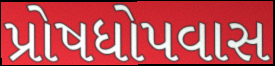
પ્રોષધોપવાસ